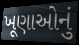
ખૂણાઓનું